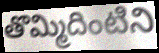
తొమ్మిదింటిని